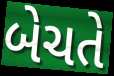
બેચતે